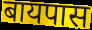
बायपास